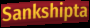
Sankshipta